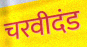
चरवीदंड